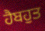
ਹੈਬਹੁਤ